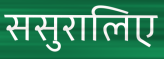
ससुरालिए